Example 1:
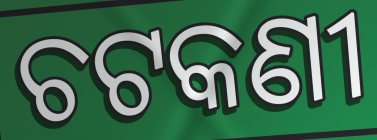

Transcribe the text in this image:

ଚଟକଣୀ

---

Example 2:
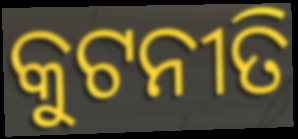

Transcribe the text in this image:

କୁଟନୀତି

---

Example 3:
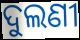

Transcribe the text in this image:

ଦୁଲଣୀ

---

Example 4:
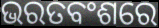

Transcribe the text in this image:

ଭରତବଂଶରେ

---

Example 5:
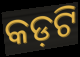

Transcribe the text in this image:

କଡ଼ଟି